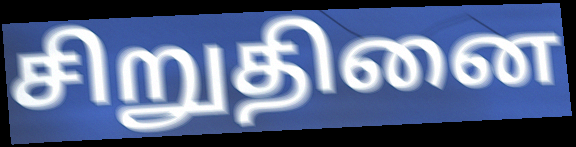
சிறுதினை